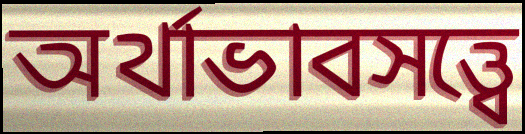
অর্থাভাবসত্ত্বে